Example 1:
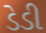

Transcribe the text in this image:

ડેડી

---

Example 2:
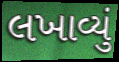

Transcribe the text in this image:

લખાવ્યું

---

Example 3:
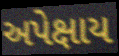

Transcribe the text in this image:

અપેક્ષાય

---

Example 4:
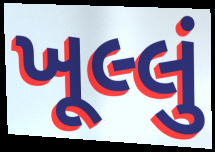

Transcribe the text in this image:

ખૂલ્લું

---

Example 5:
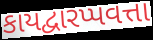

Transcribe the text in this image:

કાયદ્વારપ્પવત્તા